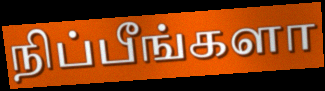
நிப்பீங்களா